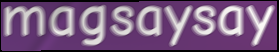
magsaysay